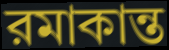
রমাকান্ত